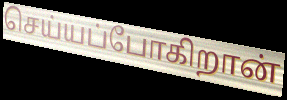
செய்யப்போகிறான்